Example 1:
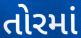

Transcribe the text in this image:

તોરમાં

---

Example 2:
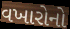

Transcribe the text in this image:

વખારોનો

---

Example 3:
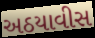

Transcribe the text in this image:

અઠયાવીસ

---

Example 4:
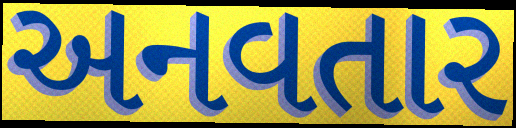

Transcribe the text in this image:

અનવતાર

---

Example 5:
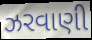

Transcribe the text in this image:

ઝરવાણી